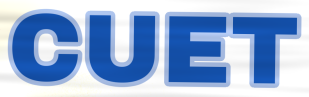
CUET